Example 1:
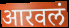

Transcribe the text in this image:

आरवलं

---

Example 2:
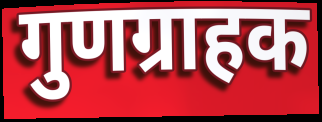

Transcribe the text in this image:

गुणग्राहक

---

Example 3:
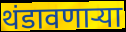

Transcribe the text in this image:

थंडावणाऱ्या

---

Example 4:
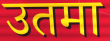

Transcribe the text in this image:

उतमा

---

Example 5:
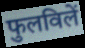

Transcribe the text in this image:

फुलविलें